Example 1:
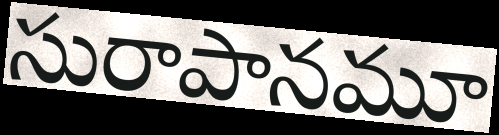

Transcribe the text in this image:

సురాపానమూ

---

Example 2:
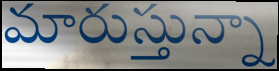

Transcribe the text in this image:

మారుస్తున్నా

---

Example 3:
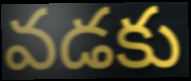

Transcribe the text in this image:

వడకు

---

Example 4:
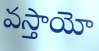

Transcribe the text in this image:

వస్తాయో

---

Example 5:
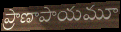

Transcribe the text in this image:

ప్రాణాపాయమూ